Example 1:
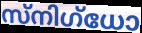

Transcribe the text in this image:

സ്നിഗ്ധോ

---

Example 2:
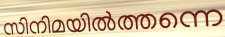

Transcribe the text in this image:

സിനിമയിൽത്തന്നെ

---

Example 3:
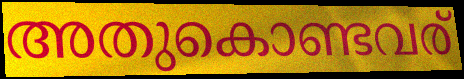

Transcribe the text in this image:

അതുകൊണ്ടവര്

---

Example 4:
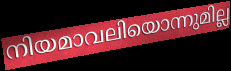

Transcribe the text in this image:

നിയമാവലിയൊന്നുമില്ല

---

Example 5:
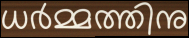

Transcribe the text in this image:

ധർമ്മത്തിനു